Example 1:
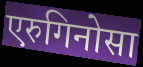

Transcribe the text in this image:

एरुगिनोसा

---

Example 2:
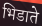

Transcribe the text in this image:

भिडाते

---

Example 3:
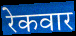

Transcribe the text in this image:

रेकवार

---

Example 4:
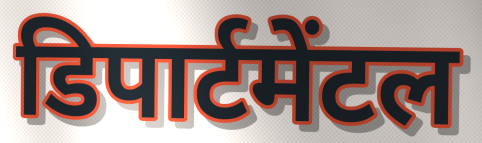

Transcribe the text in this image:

डिपार्टमेंटल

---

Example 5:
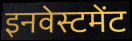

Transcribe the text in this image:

इनवेस्टमेंट